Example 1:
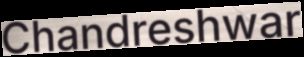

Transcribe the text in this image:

Chandreshwar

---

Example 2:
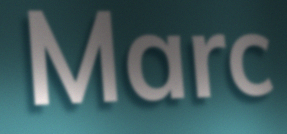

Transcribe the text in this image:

Marc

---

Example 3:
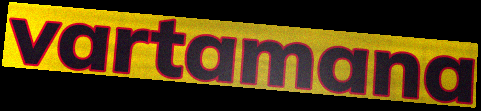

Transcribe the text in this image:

vartamana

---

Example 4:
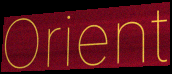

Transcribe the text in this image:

Orient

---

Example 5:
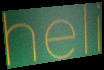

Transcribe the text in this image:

heli